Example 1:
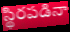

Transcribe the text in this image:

స్థిరపడినా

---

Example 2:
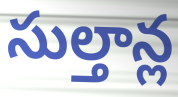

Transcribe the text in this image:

సుల్తాన్ల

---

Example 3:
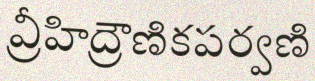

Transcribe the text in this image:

వ్రీహిద్రౌణికపర్వణి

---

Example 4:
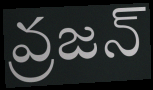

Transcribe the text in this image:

వ్రజన్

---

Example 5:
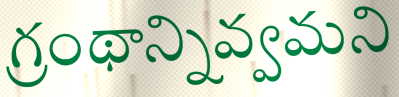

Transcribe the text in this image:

గ్రంథాన్నివ్వమని